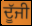
ਦੂੱਜੀ